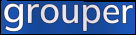
grouper